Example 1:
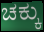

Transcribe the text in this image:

ಚಕ್ಕು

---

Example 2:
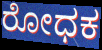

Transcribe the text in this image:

ರೋಧಕ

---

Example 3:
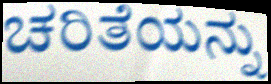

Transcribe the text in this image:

ಚರಿತೆಯನ್ನು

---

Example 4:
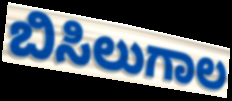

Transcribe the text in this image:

ಬಿಸಿಲುಗಾಲ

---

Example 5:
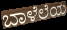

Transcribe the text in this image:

ಬಾಳೆಲೆಯ